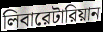
লিবারেটারিয়ান